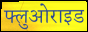
फ्लुओराइड